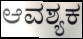
ಆವಶ್ಯಕ